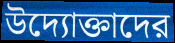
উদ্যোক্তাদের